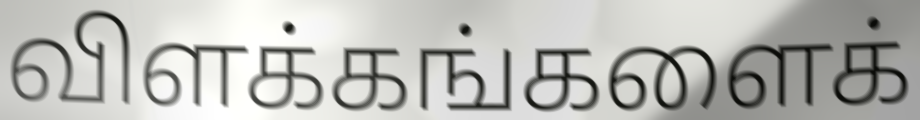
விளக்கங்களைக்